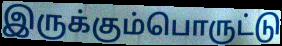
இருக்கும்பொருட்டு